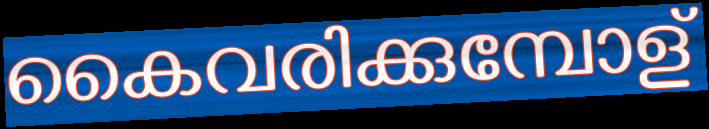
കൈവരിക്കുമ്പോള്